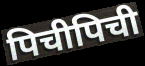
पिचीपिची